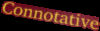
Connotative